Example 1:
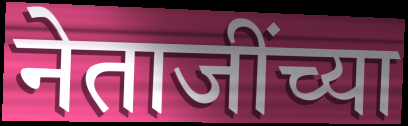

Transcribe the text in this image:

नेताजींच्या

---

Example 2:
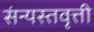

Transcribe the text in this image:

संन्यस्तवृत्ती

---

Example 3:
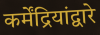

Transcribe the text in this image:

कर्मेंद्रियांद्वारे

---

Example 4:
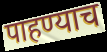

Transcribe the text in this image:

पाहण्याच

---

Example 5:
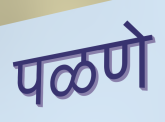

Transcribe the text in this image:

पळणे